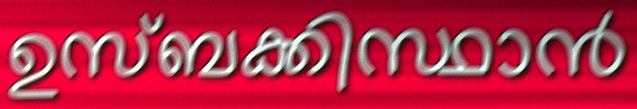
ഉസ്ബക്കിസ്ഥാൻ